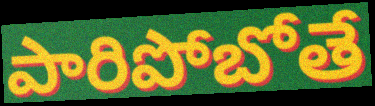
పారిపోబోతే